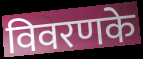
विवरणके